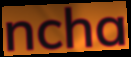
ncha